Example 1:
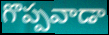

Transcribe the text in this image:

గొప్పవాడా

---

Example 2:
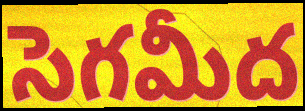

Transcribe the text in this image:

సెగమీద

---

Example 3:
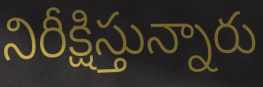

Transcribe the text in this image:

నిరీక్షిస్తున్నారు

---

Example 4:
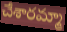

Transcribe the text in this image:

చేశారమ్మా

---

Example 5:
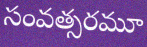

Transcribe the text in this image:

సంవత్సరమూ